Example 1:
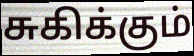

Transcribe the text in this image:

சுகிக்கும்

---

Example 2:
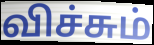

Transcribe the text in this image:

விச்சும்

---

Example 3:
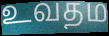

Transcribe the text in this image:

உவதம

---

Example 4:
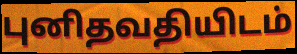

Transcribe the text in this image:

புனிதவதியிடம்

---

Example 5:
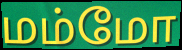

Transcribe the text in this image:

மம்மோ